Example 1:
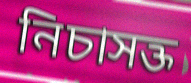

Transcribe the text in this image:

নিচাসক্ত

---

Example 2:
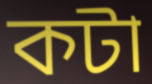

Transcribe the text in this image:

কটা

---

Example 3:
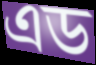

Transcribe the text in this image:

এড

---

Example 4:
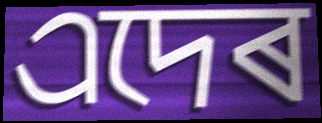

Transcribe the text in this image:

এদেৰ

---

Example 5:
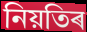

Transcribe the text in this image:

নিয়তিৰ